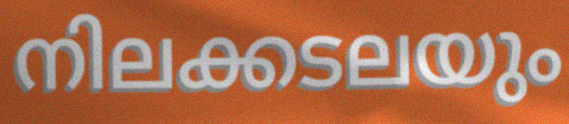
നിലക്കടലയും